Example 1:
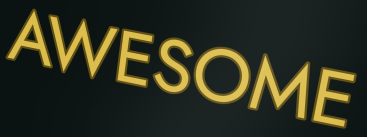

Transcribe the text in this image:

AWESOME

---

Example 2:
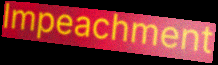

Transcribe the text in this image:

Impeachment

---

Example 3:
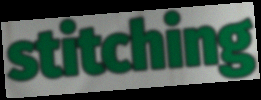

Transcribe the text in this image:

stitching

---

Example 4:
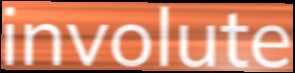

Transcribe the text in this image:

involute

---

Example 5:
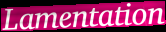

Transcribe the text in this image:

Lamentation